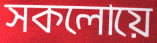
সকলোয়ে